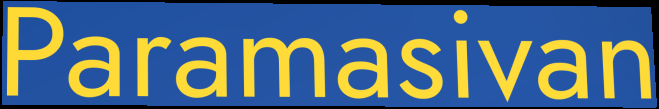
Paramasivan